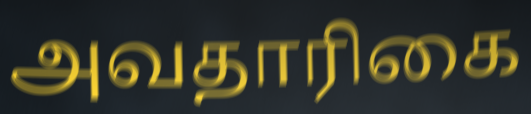
அவதாரிகை